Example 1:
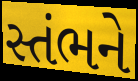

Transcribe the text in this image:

સ્તંભને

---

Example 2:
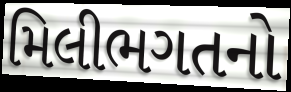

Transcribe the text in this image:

મિલીભગતનો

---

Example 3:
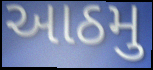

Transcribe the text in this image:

આઠમુ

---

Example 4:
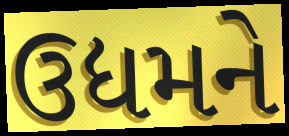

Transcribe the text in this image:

ઉદ્યમને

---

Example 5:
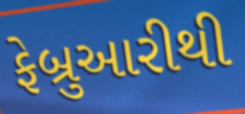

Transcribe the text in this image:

ફેબ્રુઆરીથી